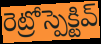
రెట్రోస్పెక్టివ్